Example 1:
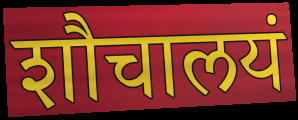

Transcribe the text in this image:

शौचालयं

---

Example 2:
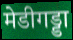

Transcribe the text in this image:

मेडीगड्डा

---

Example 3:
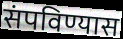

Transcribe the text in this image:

संपविण्यास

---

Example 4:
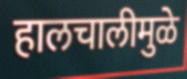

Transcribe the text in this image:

हालचालीमुळे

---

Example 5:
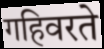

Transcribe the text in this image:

गहिवरते